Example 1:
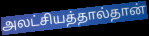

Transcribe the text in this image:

அலட்சியத்தால்தான்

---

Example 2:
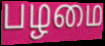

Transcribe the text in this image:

பழமை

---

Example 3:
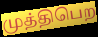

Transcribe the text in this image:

முத்திபெற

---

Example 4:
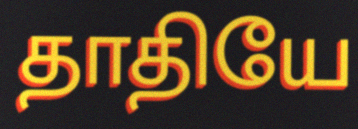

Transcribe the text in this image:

தாதியே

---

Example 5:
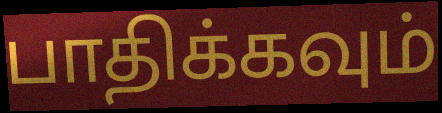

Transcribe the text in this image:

பாதிக்கவும்